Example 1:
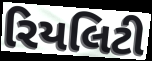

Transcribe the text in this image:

રિયલિટી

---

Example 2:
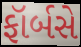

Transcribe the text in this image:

ફૉર્બસે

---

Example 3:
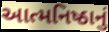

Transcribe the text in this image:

આત્મનિષ્ઠાનું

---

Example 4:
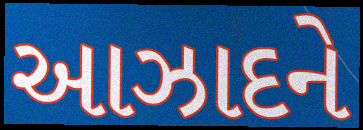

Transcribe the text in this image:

આઝાદને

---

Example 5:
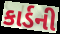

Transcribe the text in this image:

કાર્ડની